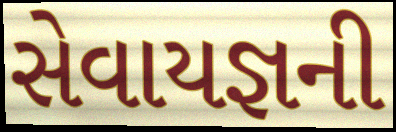
સેવાયજ્ઞની